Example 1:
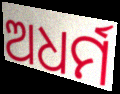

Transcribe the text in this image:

ଅଧର୍ମ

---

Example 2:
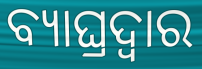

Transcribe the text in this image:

ବ୍ୟାଘ୍ରଦ୍ଵାର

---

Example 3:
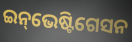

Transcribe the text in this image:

ଇନ୍‌ଭେଷ୍ଟିଗେସନ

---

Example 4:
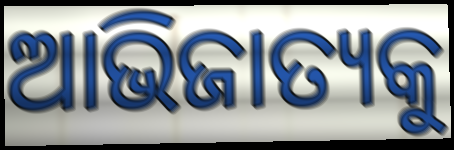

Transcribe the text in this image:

ଆଭିଜାତ୍ୟକୁ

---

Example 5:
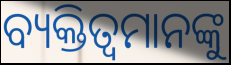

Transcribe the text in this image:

ବ୍ୟକ୍ତିତ୍ବମାନଙ୍କୁ